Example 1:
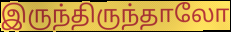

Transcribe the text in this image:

இருந்திருந்தாலோ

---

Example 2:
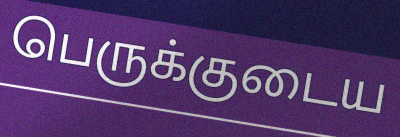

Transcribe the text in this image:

பெருக்குடைய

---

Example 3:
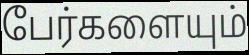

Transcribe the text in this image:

பேர்களையும்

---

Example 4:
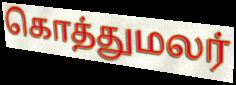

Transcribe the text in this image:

கொத்துமலர்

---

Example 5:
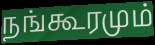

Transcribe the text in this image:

நங்கூரமும்